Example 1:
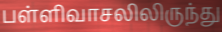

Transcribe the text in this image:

பள்ளிவாசலிலிருந்து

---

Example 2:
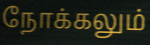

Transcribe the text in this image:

நோக்கலும்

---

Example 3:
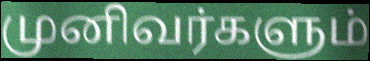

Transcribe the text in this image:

முனிவர்களும்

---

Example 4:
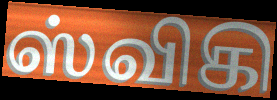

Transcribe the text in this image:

ஸ்விகி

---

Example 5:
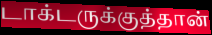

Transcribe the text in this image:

டாக்டருக்குத்தான்